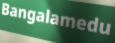
Bangalamedu